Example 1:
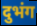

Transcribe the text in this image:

दुभंग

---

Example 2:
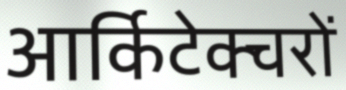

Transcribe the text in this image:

आर्किटेक्चरों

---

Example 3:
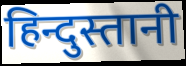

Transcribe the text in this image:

हिन्दुस्तानी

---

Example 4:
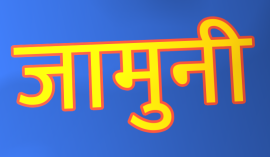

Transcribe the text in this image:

जामुनी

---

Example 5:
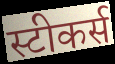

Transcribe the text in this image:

स्टीकर्स